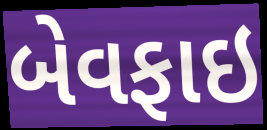
બેવફાઇ